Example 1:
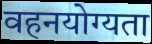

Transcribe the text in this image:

वहनयोग्यता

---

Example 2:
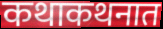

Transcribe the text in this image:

कथाकथनात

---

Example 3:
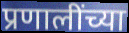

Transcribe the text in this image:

प्रणालींच्या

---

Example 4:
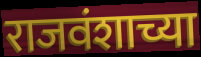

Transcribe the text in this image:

राजवंशाच्या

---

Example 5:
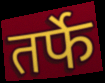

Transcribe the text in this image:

तर्फे